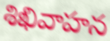
శిఖివాహన